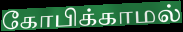
கோபிக்காமல்